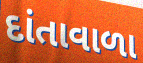
દાંતાવાળા